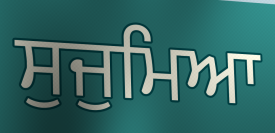
ਸੁਜੁਮਿਆ